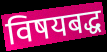
विषयबद्ध